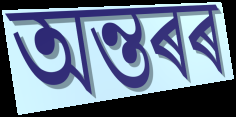
অন্তৰৰ